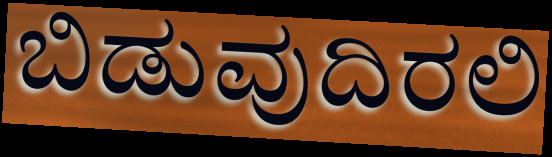
ಬಿಡುವುದಿರಲಿ